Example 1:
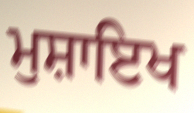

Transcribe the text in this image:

ਮੁਸ਼ਾਇਖ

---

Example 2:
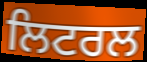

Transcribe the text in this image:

ਲਿਟਰਲ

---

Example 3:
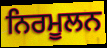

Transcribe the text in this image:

ਨਿਰਮੂਲਨ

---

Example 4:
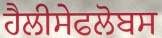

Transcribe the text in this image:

ਹੈਲੀਸੇਫਲੋਬਸ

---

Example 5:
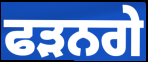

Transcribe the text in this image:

ਫੜਨਗੇ